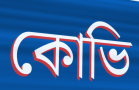
কোভি